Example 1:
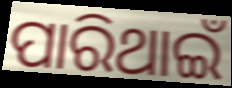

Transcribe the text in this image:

ପାରିଥାଇଁ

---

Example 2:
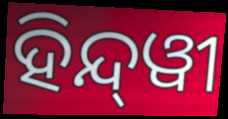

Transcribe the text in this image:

ହିନ୍ଦ୍‍ୱୀ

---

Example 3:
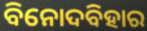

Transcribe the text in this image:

ବିନୋଦବିହାର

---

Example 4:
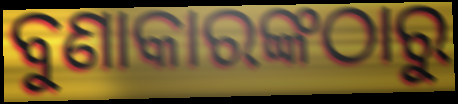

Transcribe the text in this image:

ବୁଣାକାରଙ୍କଠାରୁ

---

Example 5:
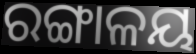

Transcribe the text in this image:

ରଙ୍ଗାଳୟ